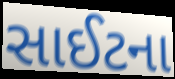
સાઈટના